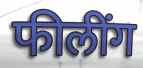
फीलींग